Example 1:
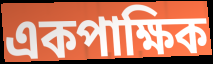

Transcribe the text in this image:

একপাক্ষিক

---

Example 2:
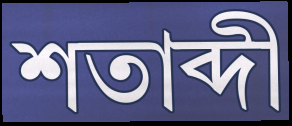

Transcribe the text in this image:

শতাব্দী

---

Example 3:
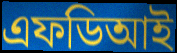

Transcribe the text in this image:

এফডিআই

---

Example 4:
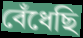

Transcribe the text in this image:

বেঁধেছি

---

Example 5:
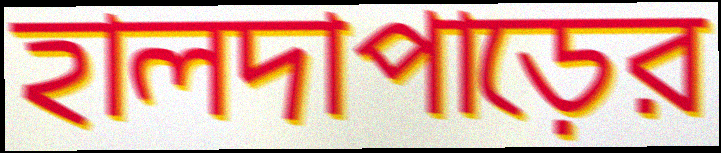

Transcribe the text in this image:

হালদাপাড়ের